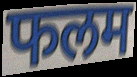
फलम